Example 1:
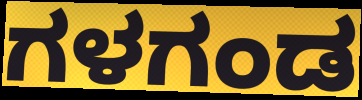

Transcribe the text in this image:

ಗಳಗಂಡ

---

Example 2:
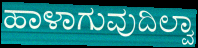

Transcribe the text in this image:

ಹಾಳಾಗುವುದಿಲ್ವಾ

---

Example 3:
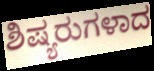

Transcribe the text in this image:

ಶಿಷ್ಯರುಗಳಾದ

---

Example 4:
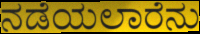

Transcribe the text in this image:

ನಡೆಯಲಾರೆನು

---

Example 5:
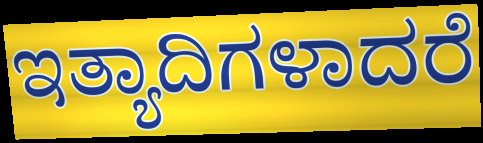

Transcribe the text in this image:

ಇತ್ಯಾದಿಗಳಾದರೆ